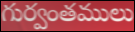
గుర్వంతములు